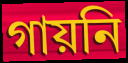
গায়নি